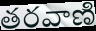
తరవాణి